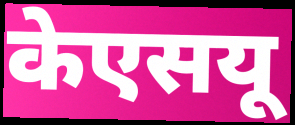
केएसयू